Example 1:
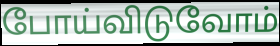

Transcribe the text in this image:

போய்விடுவோம்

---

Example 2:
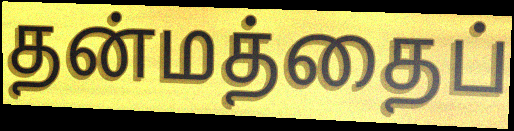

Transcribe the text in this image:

தன்மத்தைப்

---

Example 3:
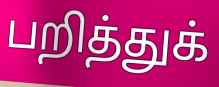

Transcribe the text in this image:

பறித்துக்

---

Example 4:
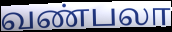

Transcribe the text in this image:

வண்பலா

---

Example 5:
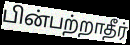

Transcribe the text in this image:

பின்பற்றாதீர்